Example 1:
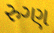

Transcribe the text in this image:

રુગ્ણ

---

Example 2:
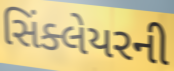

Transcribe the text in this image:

સિંક્લેયરની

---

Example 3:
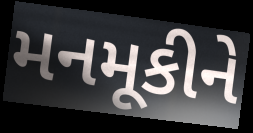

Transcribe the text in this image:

મનમૂકીને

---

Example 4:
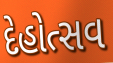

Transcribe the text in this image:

દેહોત્સવ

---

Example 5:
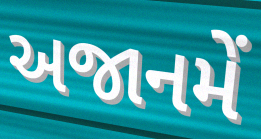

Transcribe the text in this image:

અજાનમેં